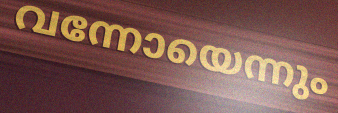
വന്നോയെന്നും